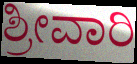
ಶ್ರೀವಾರಿ